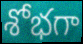
శోభగా